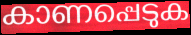
കാണപ്പെടുക